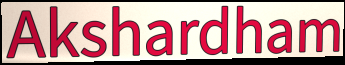
Akshardham